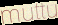
muttu